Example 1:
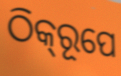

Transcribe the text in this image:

ଠିକ୍‌ରୂପେ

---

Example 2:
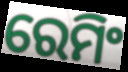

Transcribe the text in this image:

ରେମିଂ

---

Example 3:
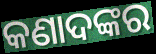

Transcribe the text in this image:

କଣାଦଙ୍କର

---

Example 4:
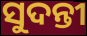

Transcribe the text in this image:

ସୁଦନ୍ତୀ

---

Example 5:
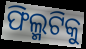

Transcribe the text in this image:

ଫିଲ୍ମଟିକୁ